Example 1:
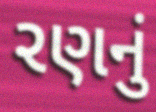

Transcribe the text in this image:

રણનું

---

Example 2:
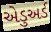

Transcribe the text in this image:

એડુઅર્ડ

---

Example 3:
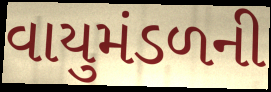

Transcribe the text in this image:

વાયુમંડળની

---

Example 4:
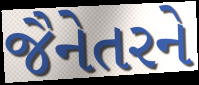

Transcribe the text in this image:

જૈનેતરને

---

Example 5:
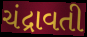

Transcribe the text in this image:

ચંદ્રાવતી